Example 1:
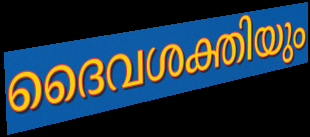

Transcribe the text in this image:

ദൈവശക്തിയും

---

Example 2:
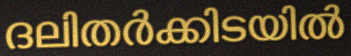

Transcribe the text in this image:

ദലിതർക്കിടയിൽ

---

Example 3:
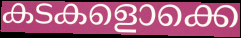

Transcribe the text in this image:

കടകളൊക്കെ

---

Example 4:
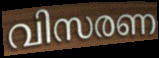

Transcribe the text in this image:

വിസരണ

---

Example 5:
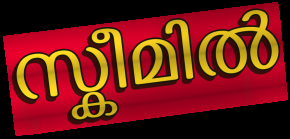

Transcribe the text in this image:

സ്കീമിൽ